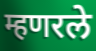
म्हणरले